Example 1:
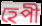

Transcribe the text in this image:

হেপী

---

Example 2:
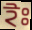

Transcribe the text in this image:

ইঃ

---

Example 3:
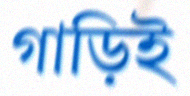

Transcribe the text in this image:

গাড়িই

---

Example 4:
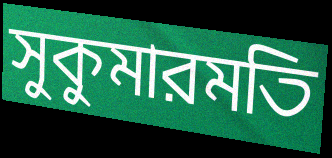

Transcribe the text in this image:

সুকুমারমতি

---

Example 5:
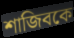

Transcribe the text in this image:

শাজিবকে